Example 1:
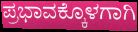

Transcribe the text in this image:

ಪ್ರಭಾವಕ್ಕೊಳಗಾಗಿ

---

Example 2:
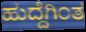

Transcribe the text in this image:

ಹುದ್ದೆಗಿಂತ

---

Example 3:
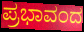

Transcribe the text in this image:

ಪ್ರಭಾವಂದ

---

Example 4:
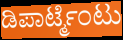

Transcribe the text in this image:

ಡಿಪಾರ್ಟ್ಮೆಂಟು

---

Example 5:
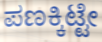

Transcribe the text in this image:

ಪಣಕ್ಕಿಟ್ಟೇ